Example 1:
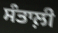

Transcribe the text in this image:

ਸੰਤਾਲ਼ੀ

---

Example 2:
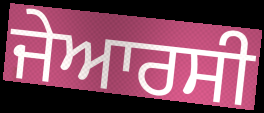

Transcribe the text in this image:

ਜੇਆਰਸੀ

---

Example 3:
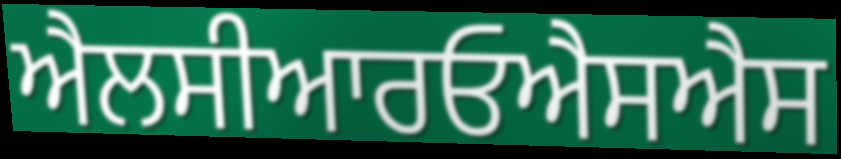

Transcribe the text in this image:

ਐਲਸੀਆਰਓਐਸਐਸ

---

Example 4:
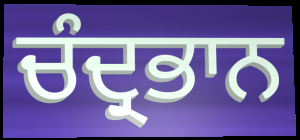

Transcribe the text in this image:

ਚੰਦ੍ਰਭਾਨ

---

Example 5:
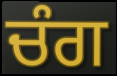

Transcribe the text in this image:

ਚੰਗ